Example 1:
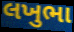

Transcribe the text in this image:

લખુભા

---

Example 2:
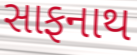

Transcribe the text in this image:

સાફનાથ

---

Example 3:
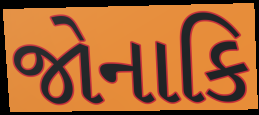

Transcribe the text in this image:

જોનાકિ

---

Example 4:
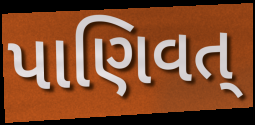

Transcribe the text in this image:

પાણિવત્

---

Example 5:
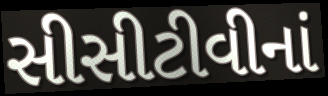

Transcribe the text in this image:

સીસીટીવીનાં